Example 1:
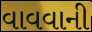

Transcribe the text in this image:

વાવવાની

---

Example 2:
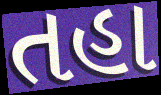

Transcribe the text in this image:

તહા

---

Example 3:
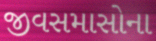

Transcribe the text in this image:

જીવસમાસોના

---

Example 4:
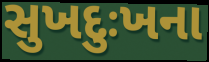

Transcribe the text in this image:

સુખદુઃખના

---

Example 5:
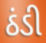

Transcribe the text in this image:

ઠંડી